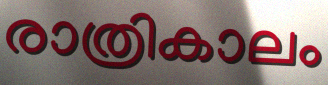
രാത്രികാലം